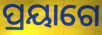
ପ୍ରୟାଗେ